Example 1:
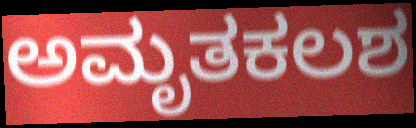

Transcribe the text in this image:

ಅಮೃತಕಲಶ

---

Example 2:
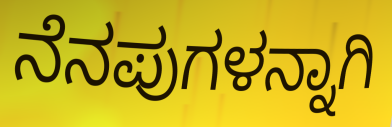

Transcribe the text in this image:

ನೆನಪುಗಳನ್ನಾಗಿ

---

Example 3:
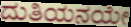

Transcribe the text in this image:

ದುತಿಯನಯೇ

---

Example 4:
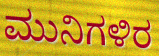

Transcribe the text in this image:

ಮುನಿಗಳಿರ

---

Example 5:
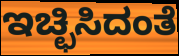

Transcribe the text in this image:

ಇಚ್ಛಿಸಿದಂತೆ